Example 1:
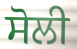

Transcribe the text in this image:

ਸੋਲੀ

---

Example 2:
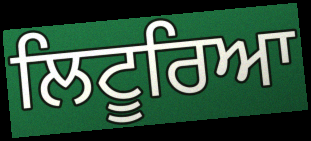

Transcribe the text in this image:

ਲਿਟੂਰਿਆ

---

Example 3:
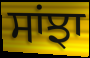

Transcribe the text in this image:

ਸਾਂਝਾ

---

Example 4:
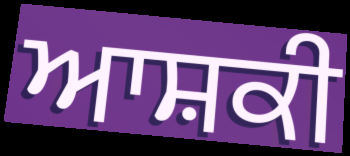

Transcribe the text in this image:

ਆਸ਼ਕੀ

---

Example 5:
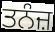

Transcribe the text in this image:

ਤਨੰਜ਼